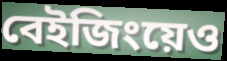
বেইজিংয়েও